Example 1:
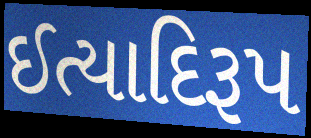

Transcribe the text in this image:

ઈત્યાદિરૂપ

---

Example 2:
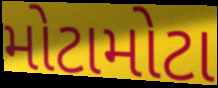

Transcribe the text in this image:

મોટામોટા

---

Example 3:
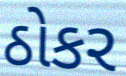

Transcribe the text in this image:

ઠોકર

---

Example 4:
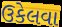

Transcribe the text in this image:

ઉકેલવા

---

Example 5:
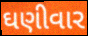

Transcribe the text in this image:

ઘણીવાર